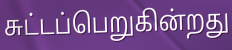
சுட்டப்பெறுகின்றது